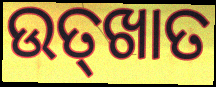
ଉତ୍‌ଖାତ